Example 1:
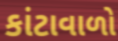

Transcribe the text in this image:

કાંટાવાળો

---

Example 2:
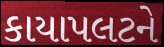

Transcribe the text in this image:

કાયાપલટને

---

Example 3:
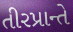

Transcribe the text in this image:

તીરપ્રાન્તે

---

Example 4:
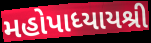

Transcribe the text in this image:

મહોપાધ્યાયશ્રી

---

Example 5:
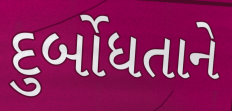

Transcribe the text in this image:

દુર્બોધતાને